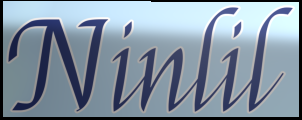
Ninlil